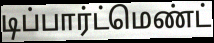
டிப்பார்ட்மெண்ட்